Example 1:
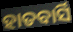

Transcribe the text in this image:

ହାତବାର୍ସି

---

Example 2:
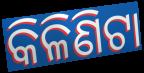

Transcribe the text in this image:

କିଳିଣିଟା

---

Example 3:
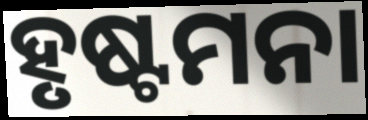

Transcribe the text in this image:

ହୃଷ୍ଟମନା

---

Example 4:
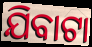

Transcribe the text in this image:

ଯିବାଟା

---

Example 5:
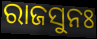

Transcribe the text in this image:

ରାଜସୁନଃ